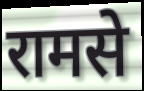
रामसे